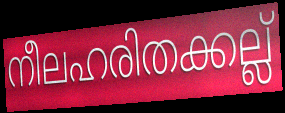
നീലഹരിതക്കല്ല്